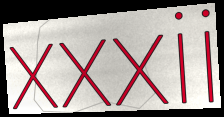
xxxii